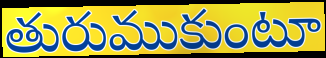
తురుముకుంటూ